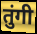
तुंगी